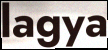
lagya